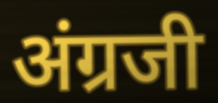
अंग्रजी